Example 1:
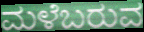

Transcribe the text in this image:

ಮಳೆಬರುವ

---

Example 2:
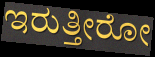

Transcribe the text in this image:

ಇರುತ್ತೀರೋ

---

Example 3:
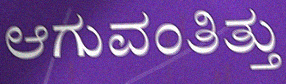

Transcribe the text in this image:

ಆಗುವಂತಿತ್ತು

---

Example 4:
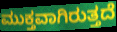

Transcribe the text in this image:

ಮುಕ್ತವಾಗಿರುತ್ತದೆ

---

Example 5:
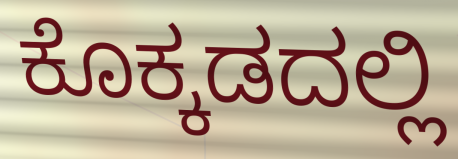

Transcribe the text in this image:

ಕೊಕ್ಕಡದಲ್ಲಿ